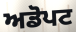
ਅਡੋਪਟ